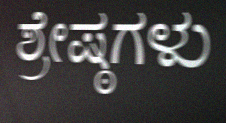
ಶ್ರೇಷ್ಠಗಳು